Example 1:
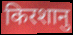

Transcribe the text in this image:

किरशानु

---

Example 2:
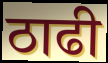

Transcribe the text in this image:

ठाढी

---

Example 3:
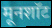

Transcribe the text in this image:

मूनशॉट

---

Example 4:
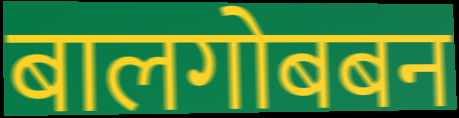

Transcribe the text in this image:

बालगोबबन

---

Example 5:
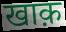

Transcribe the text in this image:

खाक़